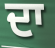
ਦਾ